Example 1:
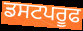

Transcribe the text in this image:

ਡਸਟਪਰੂਫ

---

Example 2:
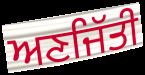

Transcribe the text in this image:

ਅਣਜਿੱਤੀ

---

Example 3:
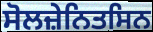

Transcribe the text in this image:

ਸੋਲਜ਼ੇਨਿਤਸਿਨ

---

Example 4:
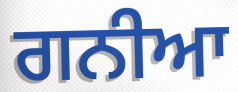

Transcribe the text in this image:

ਗਨੀਆ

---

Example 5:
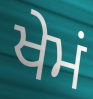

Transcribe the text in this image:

ਖੇਮਂ